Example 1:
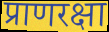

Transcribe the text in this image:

प्राणरक्षा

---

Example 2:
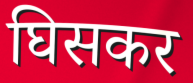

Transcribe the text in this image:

घिसकर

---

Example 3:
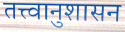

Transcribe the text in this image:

तत्त्वानुशासन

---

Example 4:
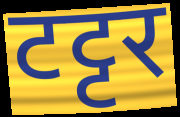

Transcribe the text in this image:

टट्टर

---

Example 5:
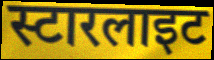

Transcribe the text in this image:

स्टारलाइट